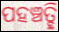
ପହଞ୍ଚତ୍ଛି